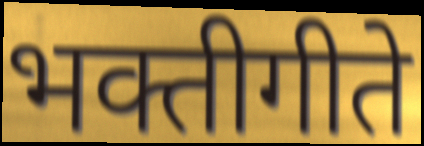
भक्तीगीते